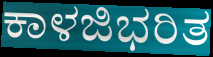
ಕಾಳಜಿಭರಿತ